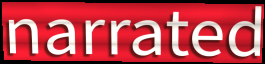
narrated